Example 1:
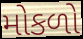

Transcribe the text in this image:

મોકળો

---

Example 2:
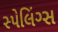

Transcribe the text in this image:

સ્પેલિંગ્સ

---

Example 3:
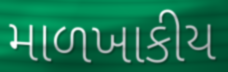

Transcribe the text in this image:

માળખાકીય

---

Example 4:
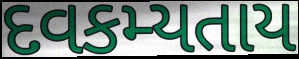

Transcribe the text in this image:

દવકમ્યતાય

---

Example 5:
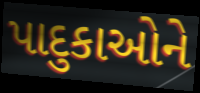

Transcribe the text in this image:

પાદુકાઓને